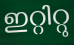
ഇറ്റിറ്റു